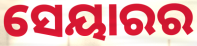
ସେୟାରର